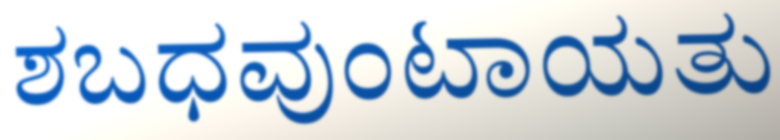
ಶಬಧವುಂಟಾಯತು